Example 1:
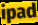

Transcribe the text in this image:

ipad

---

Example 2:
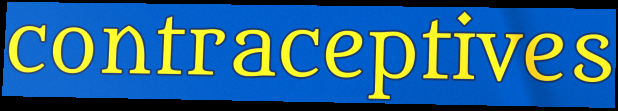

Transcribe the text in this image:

contraceptives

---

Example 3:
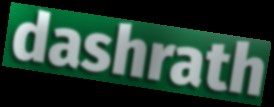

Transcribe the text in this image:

dashrath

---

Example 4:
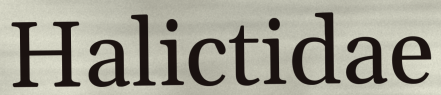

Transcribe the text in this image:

Halictidae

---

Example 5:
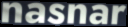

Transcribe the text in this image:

nasnar